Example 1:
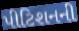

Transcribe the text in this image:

પીટિશનની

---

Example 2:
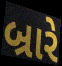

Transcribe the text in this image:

બ્રારે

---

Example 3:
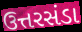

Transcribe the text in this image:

ઉત્તરસંડા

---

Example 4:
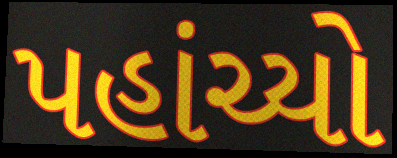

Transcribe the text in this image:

પહાંચ્યો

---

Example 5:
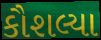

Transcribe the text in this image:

કૌશલ્યા